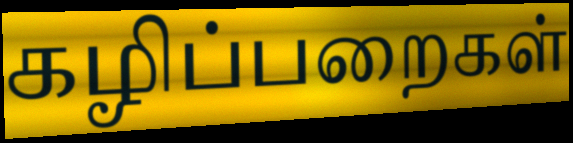
கழிப்பறைகள்